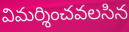
విమర్శించవలసిన